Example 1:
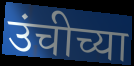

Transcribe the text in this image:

उंचीच्या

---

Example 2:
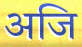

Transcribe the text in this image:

अजि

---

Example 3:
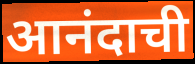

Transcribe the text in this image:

आनंदाची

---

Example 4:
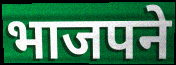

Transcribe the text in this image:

भाजपने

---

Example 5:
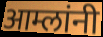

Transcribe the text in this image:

आम्लांनी